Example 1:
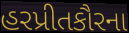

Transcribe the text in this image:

હરપ્રીતકૌરના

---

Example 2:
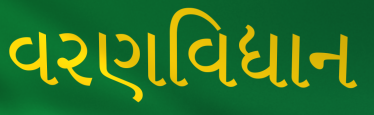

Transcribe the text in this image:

વરણવિદ્યાન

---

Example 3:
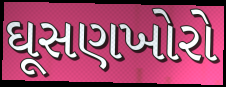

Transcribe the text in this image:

ઘૂસણખોરો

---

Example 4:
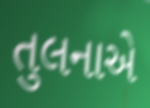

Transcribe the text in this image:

તુલનાએ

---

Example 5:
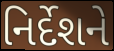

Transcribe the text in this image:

નિર્દેશને